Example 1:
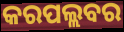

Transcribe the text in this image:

କରପଲ୍ଲବର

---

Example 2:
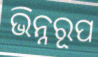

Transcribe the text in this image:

ଭିନ୍ନରୂପ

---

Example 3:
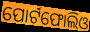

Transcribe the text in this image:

ପୋର୍ଟଫୋଲିଓ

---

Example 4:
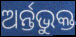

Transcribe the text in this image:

ଅର୍ନ୍ତଭୁକ୍ତ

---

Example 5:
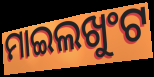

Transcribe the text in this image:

ମାଇଲଖୁଂଟ